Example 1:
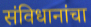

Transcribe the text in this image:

संविधानांचा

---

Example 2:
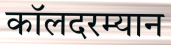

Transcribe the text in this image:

कॉलदरम्यान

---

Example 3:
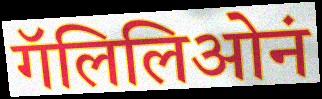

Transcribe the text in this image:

गॅलिलिओनं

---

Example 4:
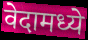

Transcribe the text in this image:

वेदामध्ये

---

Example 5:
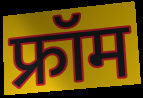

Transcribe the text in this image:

फ्रॉम